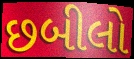
છબીલો